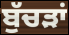
ਬੁੱਚੜਾਂ